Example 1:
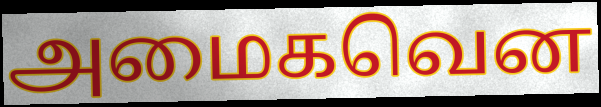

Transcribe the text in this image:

அமைகவென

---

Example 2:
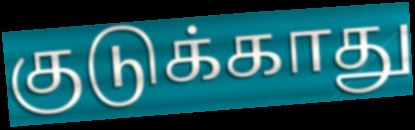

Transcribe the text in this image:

குடுக்காது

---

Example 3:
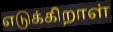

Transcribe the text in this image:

எடுக்கிறாள்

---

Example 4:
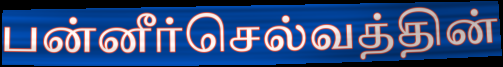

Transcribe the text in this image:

பன்னீர்செல்வத்தின்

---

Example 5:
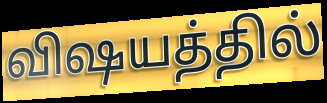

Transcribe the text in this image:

விஷயத்தில்